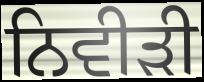
ਨਿਵੀੜੀ